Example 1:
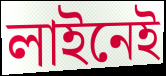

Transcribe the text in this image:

লাইনেই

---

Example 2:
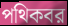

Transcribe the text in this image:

পথিকবর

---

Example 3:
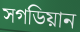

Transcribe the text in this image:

সগডিয়ান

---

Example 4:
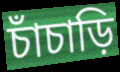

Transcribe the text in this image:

চাঁচাড়ি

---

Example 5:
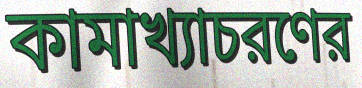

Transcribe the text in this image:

কামাখ্যাচরণের